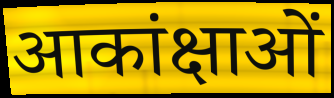
आकांक्षाओं